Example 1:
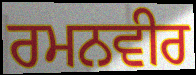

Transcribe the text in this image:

ਰਮਨਵੀਰ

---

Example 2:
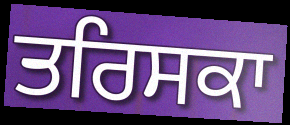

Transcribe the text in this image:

ਤਰਿਸਕਾ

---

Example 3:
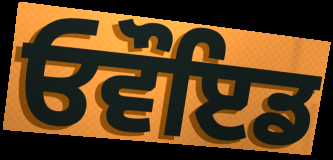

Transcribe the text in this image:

ਓਵੌਇਡ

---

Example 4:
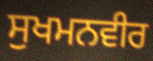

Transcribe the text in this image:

ਸੁਖਮਨਵੀਰ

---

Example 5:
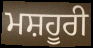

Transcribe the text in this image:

ਮਸ਼ਹੂਰੀ